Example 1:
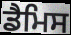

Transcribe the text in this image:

ਡੈਮਿਸ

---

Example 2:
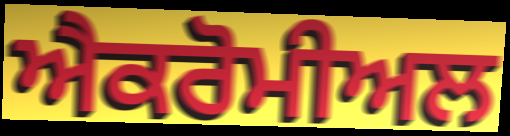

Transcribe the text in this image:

ਐਕਰੋਮੀਅਲ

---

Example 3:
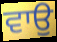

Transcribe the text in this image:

ਵਾਉ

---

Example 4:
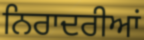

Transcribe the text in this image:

ਨਿਰਾਦਰੀਆਂ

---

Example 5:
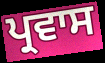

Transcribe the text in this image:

ਪ੍ਰਵਾਸ